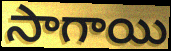
సాగాయి